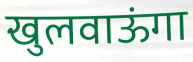
खुलवाऊंगा